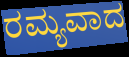
ರಮ್ಯವಾದ